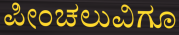
ಪೀಂಚಲುವಿಗೂ